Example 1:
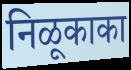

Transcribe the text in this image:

निळूकाका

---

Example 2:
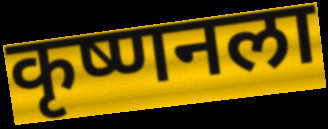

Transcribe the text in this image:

कृष्णनला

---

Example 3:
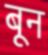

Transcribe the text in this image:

बून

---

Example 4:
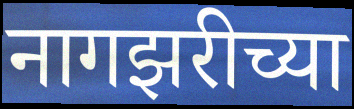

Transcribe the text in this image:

नागझरीच्या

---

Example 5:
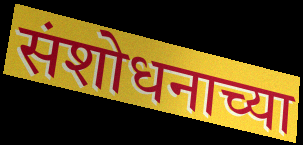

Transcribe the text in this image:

संशोधनाच्या